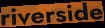
riverside